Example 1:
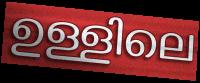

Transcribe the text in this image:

ഉള്ളിലെ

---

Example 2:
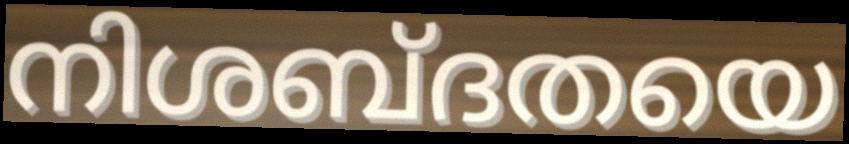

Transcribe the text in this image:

നിശബ്ദതയെ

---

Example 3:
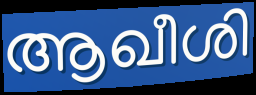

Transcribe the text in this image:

ആഖീശി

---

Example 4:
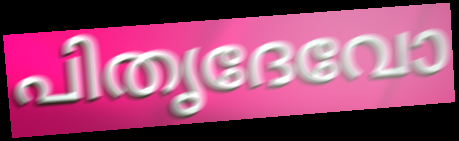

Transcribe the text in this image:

പിതൃദേവോ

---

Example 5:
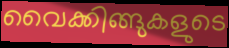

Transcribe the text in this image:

വൈക്കിങ്ങുകളുടെ